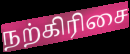
நற்கிரிசை